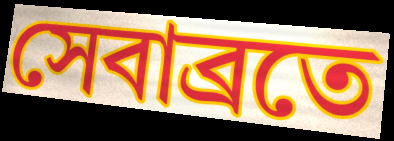
সেবাব্রতে